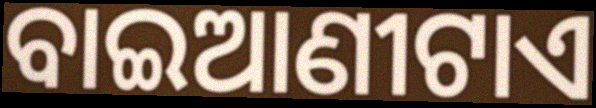
ବାଇଆଣୀଟାଏ